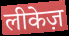
लीकेज़